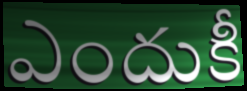
ఎందుకీ